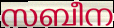
സബീന